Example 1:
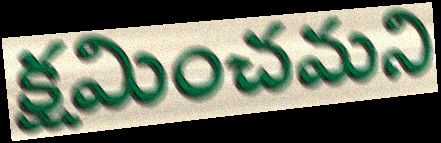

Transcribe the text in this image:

క్షమించమని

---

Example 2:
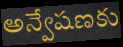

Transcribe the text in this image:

అన్వేషణకు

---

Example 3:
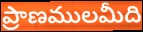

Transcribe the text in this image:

ప్రాణములమీది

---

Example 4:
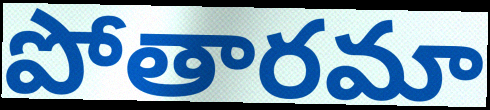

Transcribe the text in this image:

పోతారమా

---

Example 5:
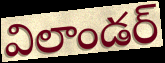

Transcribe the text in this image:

విలాండర్